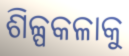
ଶିଳ୍ପକଳାକୁ